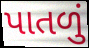
પાતળું